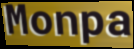
Monpa